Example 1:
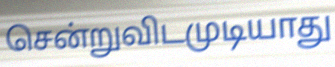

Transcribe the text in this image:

சென்றுவிடமுடியாது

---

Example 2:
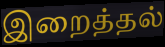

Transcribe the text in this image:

இறைத்தல்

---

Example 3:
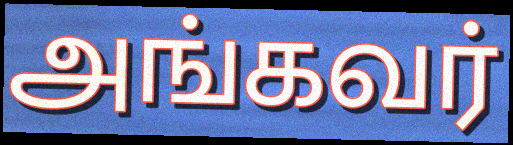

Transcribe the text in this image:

அங்கவர்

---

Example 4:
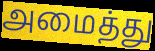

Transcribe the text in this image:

அமைத்து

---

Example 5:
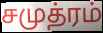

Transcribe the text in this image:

சமுத்ரம்